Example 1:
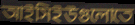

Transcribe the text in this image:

আইসিইউগুলোতে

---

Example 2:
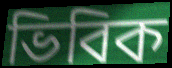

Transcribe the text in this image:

ভিবিক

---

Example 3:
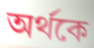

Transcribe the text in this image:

অর্থকে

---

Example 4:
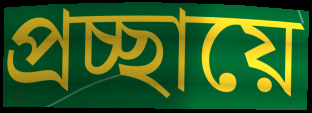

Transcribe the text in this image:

প্রচ্ছায়ে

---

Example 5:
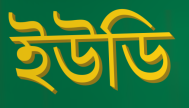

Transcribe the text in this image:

ইউডি